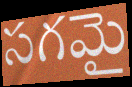
సగమై